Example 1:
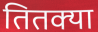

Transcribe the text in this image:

तितक्या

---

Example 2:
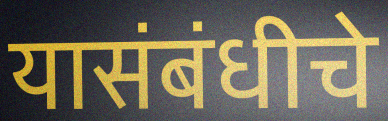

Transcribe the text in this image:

यासंबंधीचे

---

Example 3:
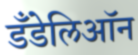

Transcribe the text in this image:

डँडेलिऑन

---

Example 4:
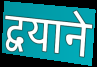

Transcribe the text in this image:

द्वयाने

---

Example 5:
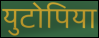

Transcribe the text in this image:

युटोपिया